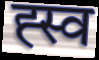
ह्स्व